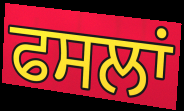
ਫਸਲਾਂ